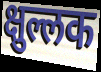
क्षुल्लक